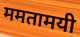
ममतामयी